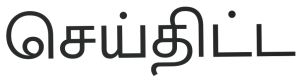
செய்திட்ட